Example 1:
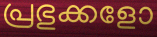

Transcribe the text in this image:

പ്രഭുക്കളോ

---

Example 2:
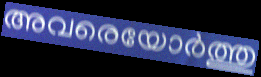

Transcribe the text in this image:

അവരെയോർത്തു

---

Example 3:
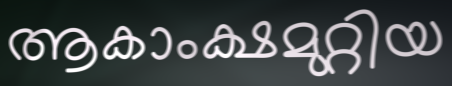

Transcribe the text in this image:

ആകാംക്ഷമുറ്റിയ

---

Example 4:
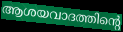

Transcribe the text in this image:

ആശയവാദത്തിന്റെ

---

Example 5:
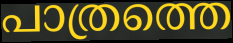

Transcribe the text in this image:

പാത്രത്തെ